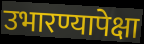
उभारण्यापेक्षा